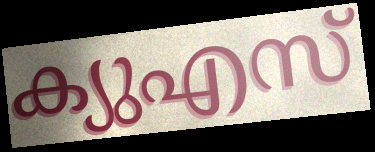
ക്യുഎസ്